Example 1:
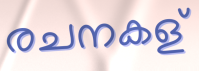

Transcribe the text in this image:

രചനകള്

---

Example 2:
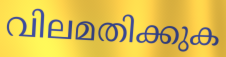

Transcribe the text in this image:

വിലമതിക്കുക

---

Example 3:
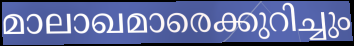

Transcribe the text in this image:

മാലാഖമാരെക്കുറിച്ചും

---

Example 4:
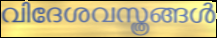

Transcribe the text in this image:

വിദേശവസ്ത്രങ്ങൾ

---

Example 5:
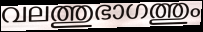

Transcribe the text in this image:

വലത്തുഭാഗത്തും